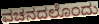
ವಚನದಲೊಂದು